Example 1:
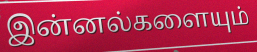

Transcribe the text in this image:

இன்னல்களையும்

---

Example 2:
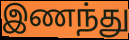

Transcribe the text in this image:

இணந்து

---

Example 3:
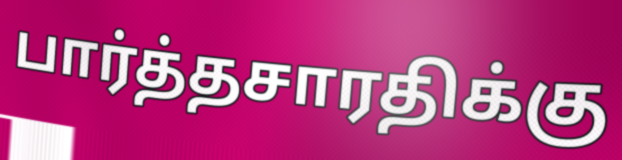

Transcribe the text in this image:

பார்த்தசாரதிக்கு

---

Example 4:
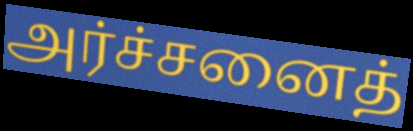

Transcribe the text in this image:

அர்ச்சனைத்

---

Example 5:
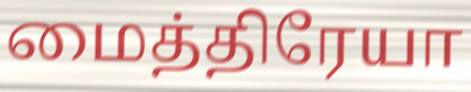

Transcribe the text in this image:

மைத்திரேயா